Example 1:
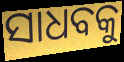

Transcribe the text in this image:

ସାଧବକୁ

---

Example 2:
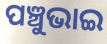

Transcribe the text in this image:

ପଞ୍ଚୁଭାଇ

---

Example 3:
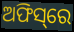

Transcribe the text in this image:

ଅଫିସ୍‌ରେ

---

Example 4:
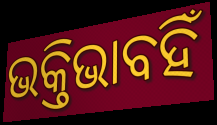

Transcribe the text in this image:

ଭକ୍ତିଭାବହିଁ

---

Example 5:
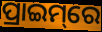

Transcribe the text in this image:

ପ୍ରାଇମ୍‌ରେ